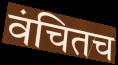
वंचितच